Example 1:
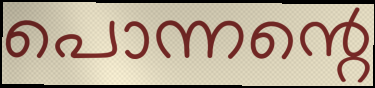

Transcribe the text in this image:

പൊന്നന്റെ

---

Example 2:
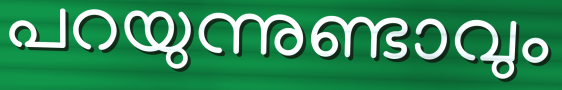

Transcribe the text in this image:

പറയുന്നുണ്ടാവും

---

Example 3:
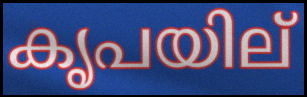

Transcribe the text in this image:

കൃപയില്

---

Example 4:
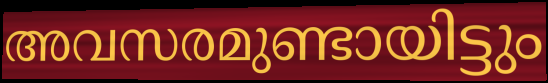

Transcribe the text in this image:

അവസരമുണ്ടായിട്ടും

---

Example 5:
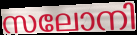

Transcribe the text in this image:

സലോനി